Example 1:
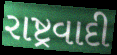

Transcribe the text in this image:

રાષ્ટ્રવાદી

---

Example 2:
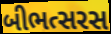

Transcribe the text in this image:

બીભત્સરસ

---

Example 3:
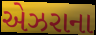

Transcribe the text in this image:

એઝરાના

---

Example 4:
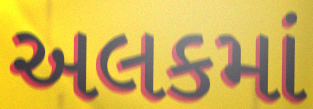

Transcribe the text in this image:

અલકમાં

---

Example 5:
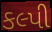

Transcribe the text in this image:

કલ્પી